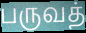
பருவத்